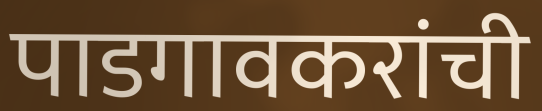
पाडगावकरांची